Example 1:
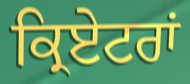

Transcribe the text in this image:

ਕ੍ਰਿਏਟਰਾਂ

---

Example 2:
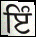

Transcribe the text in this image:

ਇੰ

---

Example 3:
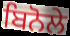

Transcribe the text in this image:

ਬਿਨੋਲੇ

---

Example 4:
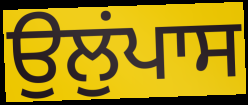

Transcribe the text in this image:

ਉਲੁਂਪਾਸ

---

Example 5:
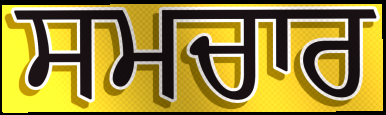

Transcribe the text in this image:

ਸਮਚਾਰ